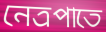
নেত্রপাতে